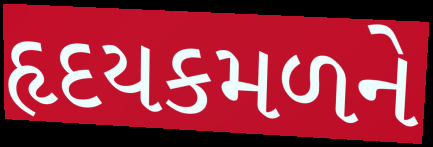
હૃદયકમળને